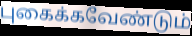
புகைக்கவேண்டும்